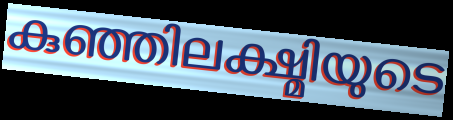
കുഞ്ഞിലക്ഷ്മിയുടെ